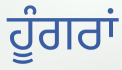
ਹੂੰਗਰਾਂ